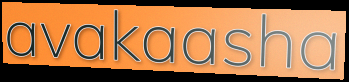
avakaasha